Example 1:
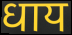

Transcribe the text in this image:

धाय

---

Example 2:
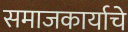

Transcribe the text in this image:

समाजकार्याचे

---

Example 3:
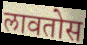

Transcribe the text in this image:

लावतोस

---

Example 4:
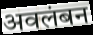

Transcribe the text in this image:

अवलंबन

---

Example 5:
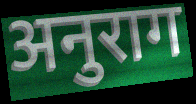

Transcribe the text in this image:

अनुराग